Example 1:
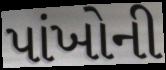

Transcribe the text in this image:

પાંખોની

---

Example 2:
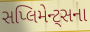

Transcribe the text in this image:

સપ્લિમેન્ટ્સના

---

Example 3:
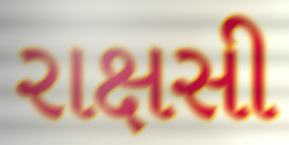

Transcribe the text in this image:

રાક્ષસી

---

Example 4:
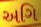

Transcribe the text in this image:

અગિ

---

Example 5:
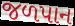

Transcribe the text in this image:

જળપાન